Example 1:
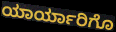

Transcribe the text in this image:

ಯಾರ್ಯಾರಿಗೊ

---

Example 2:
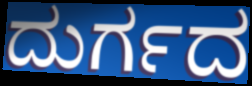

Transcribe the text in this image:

ದುರ್ಗದ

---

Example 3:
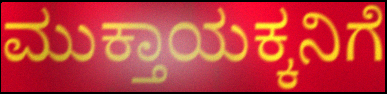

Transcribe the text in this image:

ಮುಕ್ತಾಯಕ್ಕನಿಗೆ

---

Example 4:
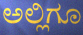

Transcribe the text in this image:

ಅಲ್ಲಿಗೂ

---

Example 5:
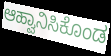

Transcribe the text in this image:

ಆಹ್ವಾನಿಸಿಕೊಂಡ